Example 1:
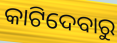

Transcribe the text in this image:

କାଟିଦେବାରୁ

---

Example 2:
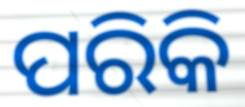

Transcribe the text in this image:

ପରିକି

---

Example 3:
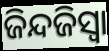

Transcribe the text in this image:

ଜିନ୍ଦଜିସ୍ୱା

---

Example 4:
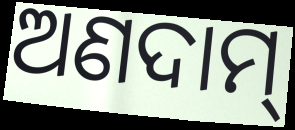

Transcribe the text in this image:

ଅଣଦାମ୍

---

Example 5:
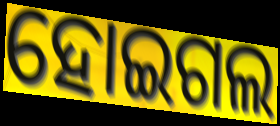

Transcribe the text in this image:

ହୋଇଗଲ